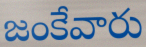
జంకేవారు